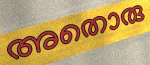
അതൊരു